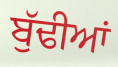
ਬੁੱਢੀਆਂ